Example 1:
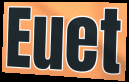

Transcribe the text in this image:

Euet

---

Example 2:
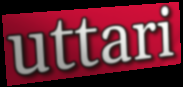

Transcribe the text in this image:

uttari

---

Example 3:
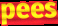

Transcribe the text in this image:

pees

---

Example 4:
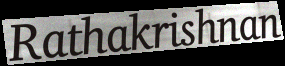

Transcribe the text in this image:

Rathakrishnan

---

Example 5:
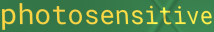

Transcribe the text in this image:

photosensitive